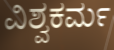
ವಿಶ್ವಕರ್ಮ